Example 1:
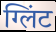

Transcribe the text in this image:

ग्लिंट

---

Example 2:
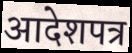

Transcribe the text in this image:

आदेशपत्र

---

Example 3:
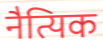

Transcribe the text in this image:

नैत्यिक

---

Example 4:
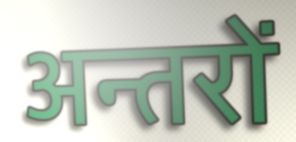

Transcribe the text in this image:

अन्तरों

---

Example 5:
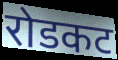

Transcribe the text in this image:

रोडकट